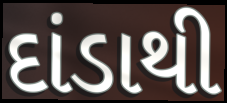
દાંડાથી